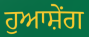
ਹੁਆਸ਼ੇਂਗ